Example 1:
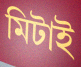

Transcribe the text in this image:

মিটাই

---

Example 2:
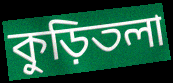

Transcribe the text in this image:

কুড়িতলা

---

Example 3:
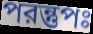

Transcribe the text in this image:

পরন্তুপঃ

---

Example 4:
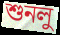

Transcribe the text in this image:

শুনলু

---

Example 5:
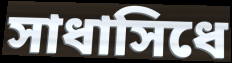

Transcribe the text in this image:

সাধাসিধে